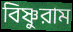
বিষ্ণুরাম